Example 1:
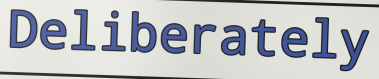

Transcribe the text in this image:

Deliberately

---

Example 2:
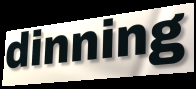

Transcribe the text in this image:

dinning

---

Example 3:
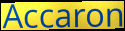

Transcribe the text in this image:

Accaron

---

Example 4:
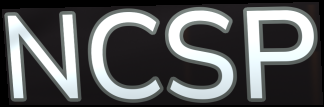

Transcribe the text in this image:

NCSP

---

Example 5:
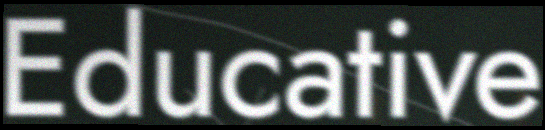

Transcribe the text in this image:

Educative